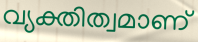
വ്യക്തിത്വമാണ്